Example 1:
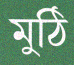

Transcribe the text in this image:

মুঠি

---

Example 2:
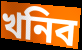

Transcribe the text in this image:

খনিব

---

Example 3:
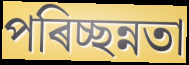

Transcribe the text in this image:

পৰিচ্ছন্নতা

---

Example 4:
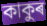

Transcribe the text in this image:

কাকুৰ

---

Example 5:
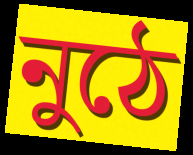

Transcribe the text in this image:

নুঠে